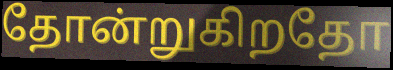
தோன்றுகிறதோ